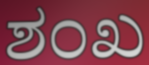
ಶಂಖ